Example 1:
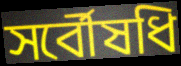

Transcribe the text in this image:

সর্বৌষধি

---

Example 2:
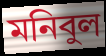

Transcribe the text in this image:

মনিবুল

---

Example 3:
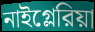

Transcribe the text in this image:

নাইগ্লেরিয়া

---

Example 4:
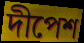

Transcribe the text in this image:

দীপেশ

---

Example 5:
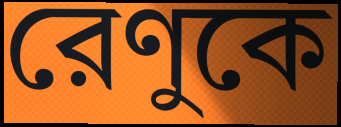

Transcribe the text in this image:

রেণুকে